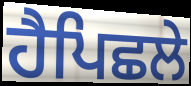
ਹੈਪਿਛਲੇ